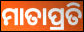
ମାତାପ୍ରତି